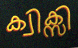
ക്വിക്സി